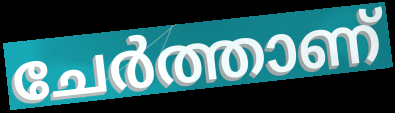
ചേർത്താണ്